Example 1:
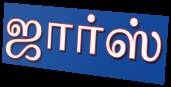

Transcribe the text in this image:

ஜார்ஸ்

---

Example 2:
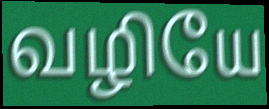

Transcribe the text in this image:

வழியே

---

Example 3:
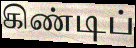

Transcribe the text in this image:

கிண்டிப்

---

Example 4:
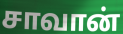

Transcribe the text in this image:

சாவான்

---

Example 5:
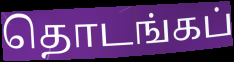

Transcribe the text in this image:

தொடங்கப்